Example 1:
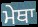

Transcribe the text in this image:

ਮੇਥਾ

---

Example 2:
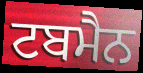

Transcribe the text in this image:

ਟਬਮੈਨ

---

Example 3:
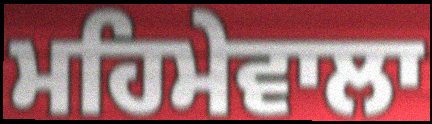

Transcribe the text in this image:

ਮਹਿਮੇਵਾਲਾ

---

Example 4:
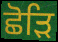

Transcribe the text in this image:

ਛੋੜਿ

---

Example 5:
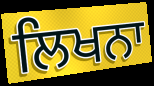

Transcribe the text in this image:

ਲਿਖਨਾ